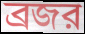
ব্রজর